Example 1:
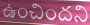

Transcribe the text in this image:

ఉంచిందని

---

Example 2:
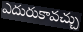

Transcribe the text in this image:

ఎదురుకావచ్చు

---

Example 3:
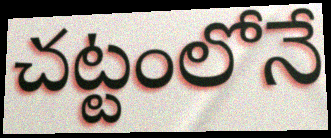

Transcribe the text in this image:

చట్టంలోనే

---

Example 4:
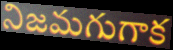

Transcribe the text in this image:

నిజమగుగాక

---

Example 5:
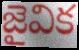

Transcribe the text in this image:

జైవిక